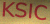
KSIC